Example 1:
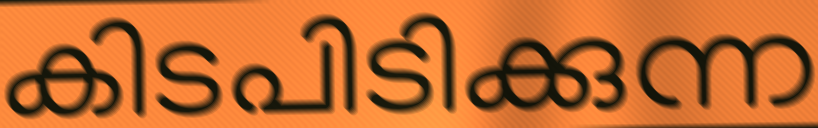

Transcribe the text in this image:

കിടപിടിക്കുന്ന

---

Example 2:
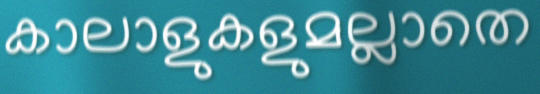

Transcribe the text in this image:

കാലാളുകളുമല്ലാതെ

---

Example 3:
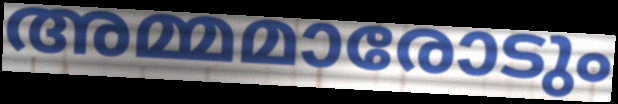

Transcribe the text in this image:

അമ്മമാരോടും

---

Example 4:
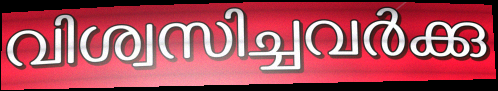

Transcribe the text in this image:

വിശ്വസിച്ചവർക്കു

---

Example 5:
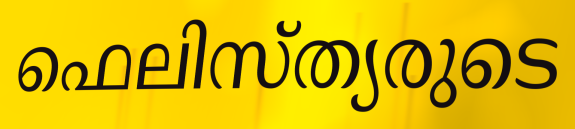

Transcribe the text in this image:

ഫെലിസ്ത്യരുടെ